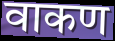
वाकण